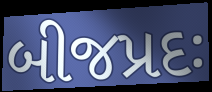
બીજપ્રદઃ